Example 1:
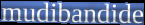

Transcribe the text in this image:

mudibandide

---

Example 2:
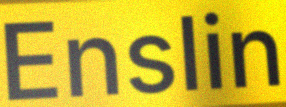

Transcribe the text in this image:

Enslin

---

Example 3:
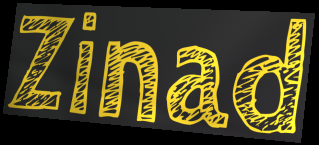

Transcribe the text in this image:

Zinad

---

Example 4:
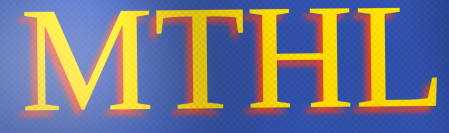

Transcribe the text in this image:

MTHL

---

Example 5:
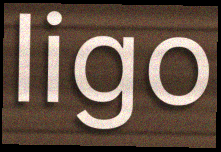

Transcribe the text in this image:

ligo